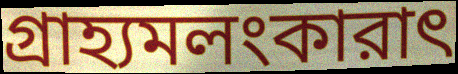
গ্রাহ্যমলংকারাৎ